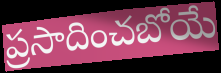
ప్రసాదించబోయే